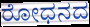
ರೋಧನದ